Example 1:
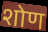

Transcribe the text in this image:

शोण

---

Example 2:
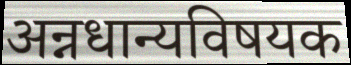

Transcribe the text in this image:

अन्नधान्यविषयक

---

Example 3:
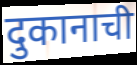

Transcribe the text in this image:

दुकानाची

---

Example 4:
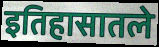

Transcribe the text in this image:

इतिहासातले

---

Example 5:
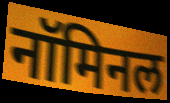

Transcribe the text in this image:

नॉमिनल